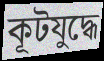
কূটযুদ্ধে